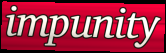
impunity